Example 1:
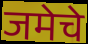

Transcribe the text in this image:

जमेचे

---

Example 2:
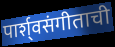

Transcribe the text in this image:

पार्श्वसंगीताची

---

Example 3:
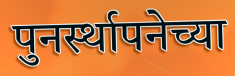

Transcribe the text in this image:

पुनर्स्थापनेच्या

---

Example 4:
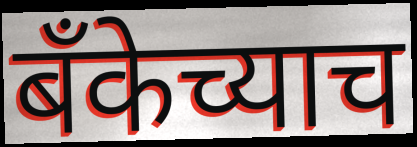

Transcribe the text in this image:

बँकेच्याच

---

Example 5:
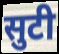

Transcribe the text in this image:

सुटी